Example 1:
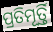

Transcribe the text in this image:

ପ୍ରତିମୂର୍ତ୍ତି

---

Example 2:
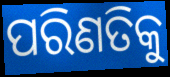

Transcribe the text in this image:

ପରିଣତିକୁ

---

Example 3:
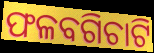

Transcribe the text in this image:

ଫଳବଗିଚାଟି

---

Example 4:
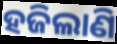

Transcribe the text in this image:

ହଜିଲାଣି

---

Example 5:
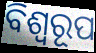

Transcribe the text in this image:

ବିଶ୍ଵରୂପ